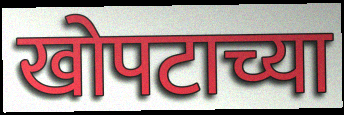
खोपटाच्या